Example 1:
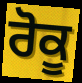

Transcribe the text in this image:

ਰੋਕੂ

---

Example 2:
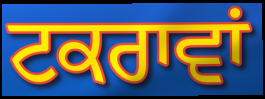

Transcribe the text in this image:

ਟਕਰਾਵਾਂ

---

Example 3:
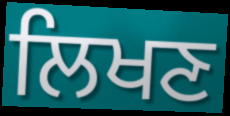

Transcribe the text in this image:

ਲਿਖਣ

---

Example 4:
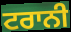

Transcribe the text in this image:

ਟਰਾਨੀ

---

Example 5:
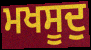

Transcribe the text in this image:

ਮਖਸੂਦੁ